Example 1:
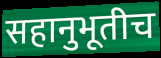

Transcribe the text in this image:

सहानुभूतीच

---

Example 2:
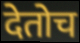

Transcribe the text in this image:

देतोच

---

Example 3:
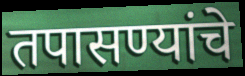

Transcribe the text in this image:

तपासण्यांचे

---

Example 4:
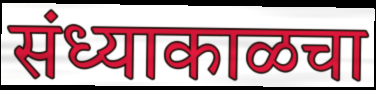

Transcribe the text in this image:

संध्याकाळचा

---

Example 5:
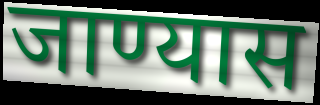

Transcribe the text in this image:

जाण्यास